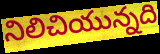
నిలిచియున్నది